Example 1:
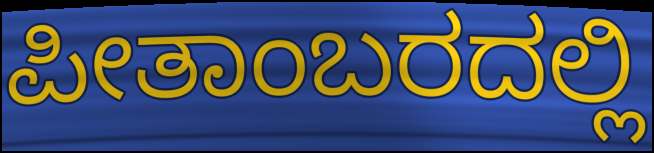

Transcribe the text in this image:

ಪೀತಾಂಬರದಲ್ಲಿ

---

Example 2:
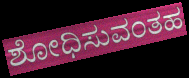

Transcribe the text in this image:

ಶೋಧಿಸುವಂತಹ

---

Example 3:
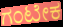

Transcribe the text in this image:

ಗಂಟೇಕ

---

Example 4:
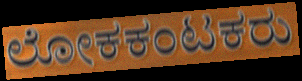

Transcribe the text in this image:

ಲೋಕಕಂಟಕರು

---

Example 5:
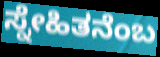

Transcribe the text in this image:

ಸ್ನೇಹಿತನೆಂಬ